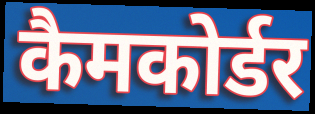
कैमकोर्डर